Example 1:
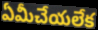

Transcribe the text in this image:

ఏమీచేయలేక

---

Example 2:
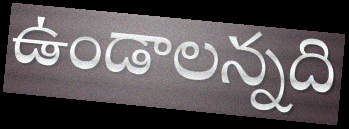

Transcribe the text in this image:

ఉండాలన్నది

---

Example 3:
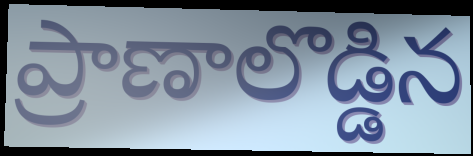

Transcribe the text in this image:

ప్రాణాలొడ్డిన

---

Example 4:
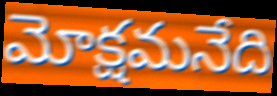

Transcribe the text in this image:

మోక్షమనేది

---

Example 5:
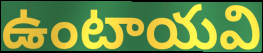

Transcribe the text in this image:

ఉంటాయవి